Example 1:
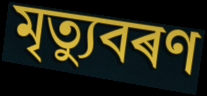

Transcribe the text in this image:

মৃত্যুবৰণ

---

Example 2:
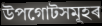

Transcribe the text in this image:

উপগোটসমূহৰ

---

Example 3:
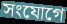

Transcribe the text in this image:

সংযোগে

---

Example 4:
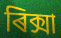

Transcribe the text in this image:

ৰিক্সা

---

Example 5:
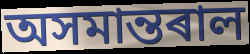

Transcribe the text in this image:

অসমান্তৰাল